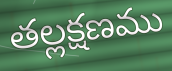
తల్లక్షణము